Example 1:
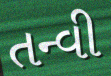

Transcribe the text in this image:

તન્વી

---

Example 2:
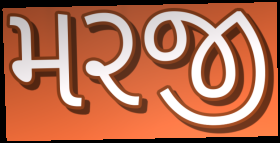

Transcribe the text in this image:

મરજી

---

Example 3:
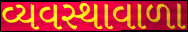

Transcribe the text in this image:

વ્યવસ્થાવાળા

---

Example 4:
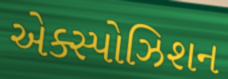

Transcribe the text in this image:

એક્સ્પોઝિશન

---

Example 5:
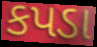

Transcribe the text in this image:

કપડા